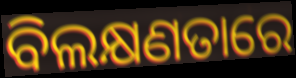
ବିଲକ୍ଷଣତାରେ